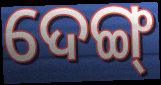
ଦେଙ୍ଗ୍